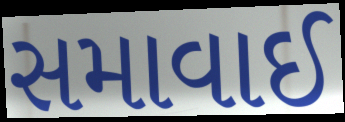
સમાવાઈ